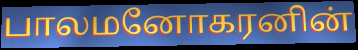
பாலமனோகரனின்